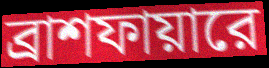
ব্রাশফায়ারে